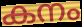
കനം